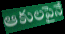
ఆకులపైనే